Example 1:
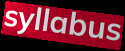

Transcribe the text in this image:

syllabus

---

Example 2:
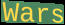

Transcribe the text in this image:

Wars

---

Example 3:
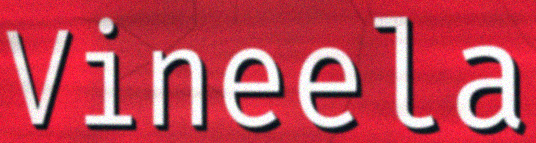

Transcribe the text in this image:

Vineela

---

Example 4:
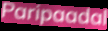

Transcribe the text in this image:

Paripaadal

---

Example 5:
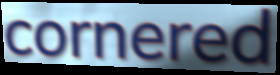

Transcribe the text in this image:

cornered